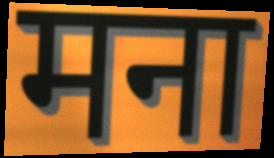
मना